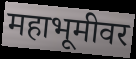
महाभूमीवर